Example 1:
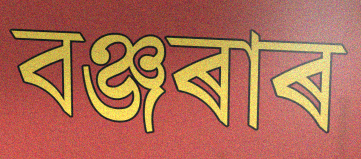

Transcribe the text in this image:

বঞ্জৰাৰ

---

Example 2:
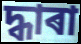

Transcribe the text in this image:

দ্ধাৰা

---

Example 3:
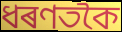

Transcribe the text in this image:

ধৰণতকৈ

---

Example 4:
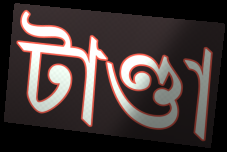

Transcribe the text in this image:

টাণ্ডা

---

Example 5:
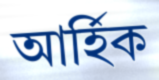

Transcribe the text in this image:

আৰ্হিক